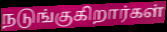
நடுங்குகிறார்கள்